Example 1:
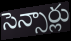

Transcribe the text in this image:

సెన్సార్లు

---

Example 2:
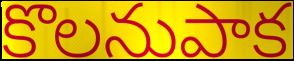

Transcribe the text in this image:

కొలనుపాక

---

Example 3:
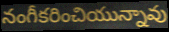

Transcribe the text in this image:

నంగీకరించియున్నావు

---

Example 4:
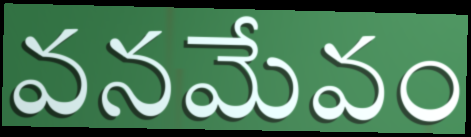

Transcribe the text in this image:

వనమేవం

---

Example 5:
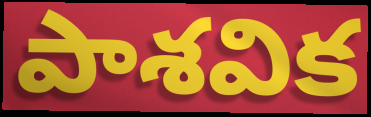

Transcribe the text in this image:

పాశవిక